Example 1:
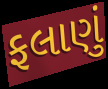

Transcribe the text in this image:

ફલાણું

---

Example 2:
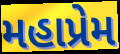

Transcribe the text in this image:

મહાપ્રેમ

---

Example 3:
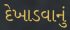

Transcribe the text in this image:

દેખાડવાનું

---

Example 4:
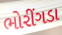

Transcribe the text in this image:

ભોરીંગડા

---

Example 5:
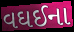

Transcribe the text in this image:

વઘઈના